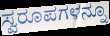
ಸ್ವರೂಪಗಳನ್ನೂ